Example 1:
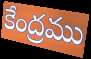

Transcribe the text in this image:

కేంద్రము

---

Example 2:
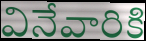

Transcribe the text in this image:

వినేవారికి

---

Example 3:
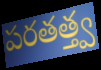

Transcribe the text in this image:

పరతత్త్వ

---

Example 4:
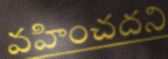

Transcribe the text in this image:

వహించదని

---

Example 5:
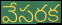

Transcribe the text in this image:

వేసరక